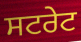
ਸਟਰੇਟ